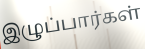
இழுப்பார்கள்